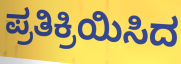
ಪ್ರತಿಕ್ರಿಯಿಸಿದ